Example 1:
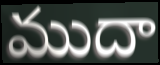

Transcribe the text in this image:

ముదా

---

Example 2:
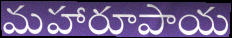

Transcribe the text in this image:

మహారూపాయ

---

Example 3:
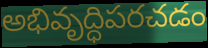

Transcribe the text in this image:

అభివృద్ధిపరచడం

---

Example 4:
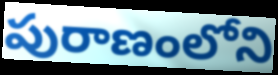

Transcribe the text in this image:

పురాణంలోని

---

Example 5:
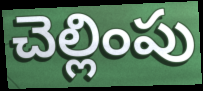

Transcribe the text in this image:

చెల్లింపు